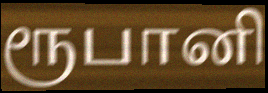
ரூபானி